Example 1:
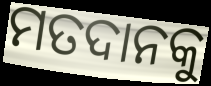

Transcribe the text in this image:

ମତଦାନକୁ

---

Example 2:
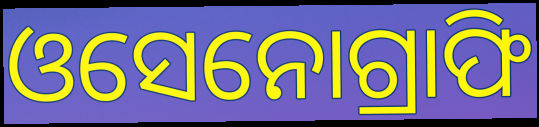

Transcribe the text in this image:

ଓସେନୋଗ୍ରାଫି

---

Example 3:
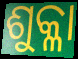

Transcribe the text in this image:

ଶୁକ୍ଳା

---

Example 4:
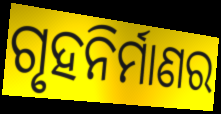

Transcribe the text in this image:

ଗୃହନିର୍ମାଣର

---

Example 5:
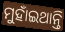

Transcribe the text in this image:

ମୁହାଁଇଥାନ୍ତି